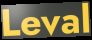
Leval